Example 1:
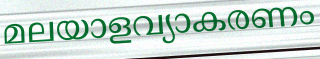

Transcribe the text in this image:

മലയാളവ്യാകരണം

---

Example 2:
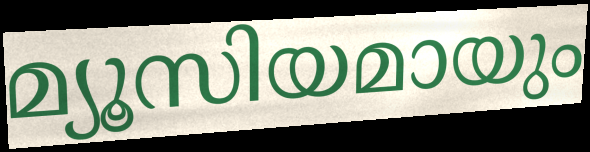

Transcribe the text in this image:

മ്യൂസിയമായും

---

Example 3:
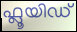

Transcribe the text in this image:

ഫ്ലൂയിഡ്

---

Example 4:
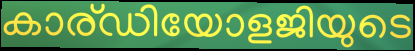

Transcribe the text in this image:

കാര്ഡിയോളജിയുടെ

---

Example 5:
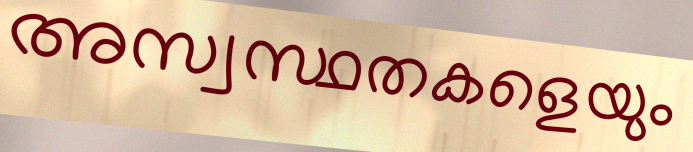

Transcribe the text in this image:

അസ്വസ്ഥതകളെയും